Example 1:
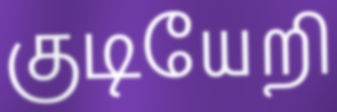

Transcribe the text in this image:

குடியேறி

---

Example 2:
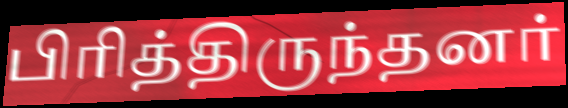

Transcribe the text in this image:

பிரித்திருந்தனர்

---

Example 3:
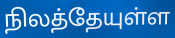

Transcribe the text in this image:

நிலத்தேயுள்ள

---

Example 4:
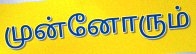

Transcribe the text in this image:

முன்னோரும்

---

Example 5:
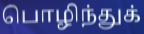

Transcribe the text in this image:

பொழிந்துக்